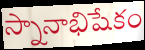
స్నానాభిషేకం